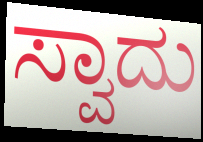
ಸ್ವಾದು